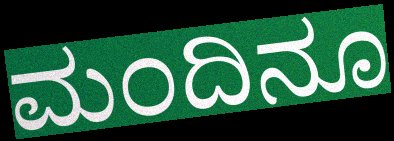
ಮಂದಿನೂ